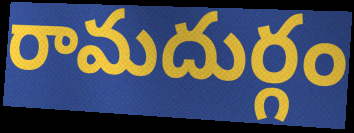
రామదుర్గం